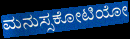
ಮನುಸ್ಸಕೋಟಿಯೋ